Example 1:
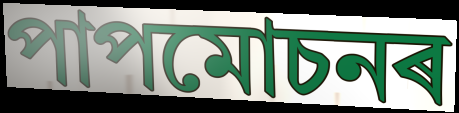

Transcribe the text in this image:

পাপমোচনৰ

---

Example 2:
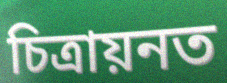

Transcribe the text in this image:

চিত্ৰায়নত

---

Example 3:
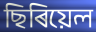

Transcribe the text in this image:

ছিৰিয়েল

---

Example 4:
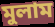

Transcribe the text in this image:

মুলাম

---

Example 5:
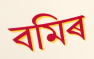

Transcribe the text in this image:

বমিৰ